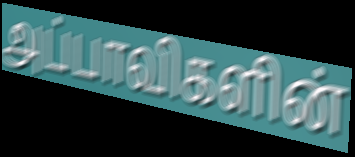
அப்பாவிகளின்